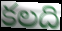
కలది